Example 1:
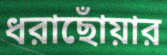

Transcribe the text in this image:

ধরাছোঁয়ার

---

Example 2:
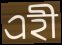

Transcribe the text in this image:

এহী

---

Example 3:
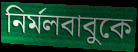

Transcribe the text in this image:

নির্মলবাবুকে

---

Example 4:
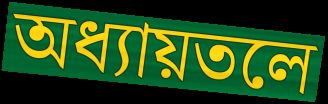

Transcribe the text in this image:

অধ্যায়তলে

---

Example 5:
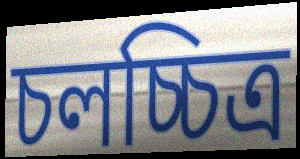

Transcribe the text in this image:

চলচ্চিত্র